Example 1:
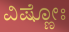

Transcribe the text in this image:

ವಿಷ್ಣೋಃ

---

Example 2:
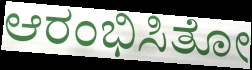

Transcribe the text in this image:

ಆರಂಭಿಸಿತೋ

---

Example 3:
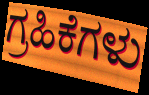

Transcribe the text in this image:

ಗ್ರಹಿಕೆಗಳು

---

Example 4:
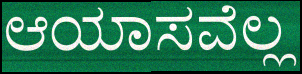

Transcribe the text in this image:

ಆಯಾಸವೆಲ್ಲ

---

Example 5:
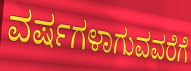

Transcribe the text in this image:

ವರ್ಷಗಳಾಗುವವರೆಗೆ